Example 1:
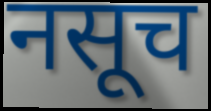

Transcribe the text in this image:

नसूच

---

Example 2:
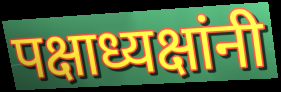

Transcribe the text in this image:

पक्षाध्यक्षांनी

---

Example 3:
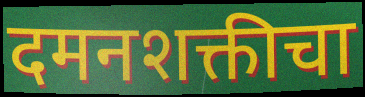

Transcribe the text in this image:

दमनशक्तीचा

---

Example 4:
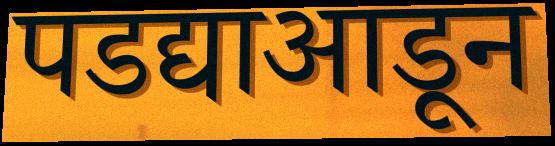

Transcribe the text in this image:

पडद्याआडून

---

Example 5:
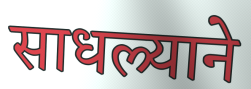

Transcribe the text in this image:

साधल्याने